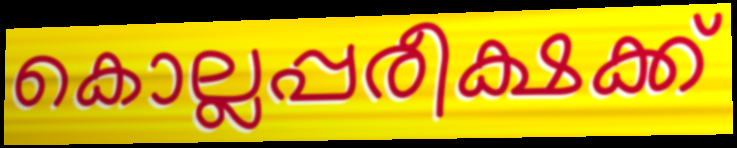
കൊല്ലപ്പരീക്ഷക്ക്